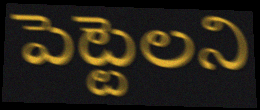
పెట్టెలని